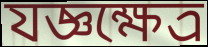
যজ্ঞক্ষেত্র